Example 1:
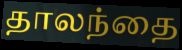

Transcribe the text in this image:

தாலந்தை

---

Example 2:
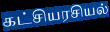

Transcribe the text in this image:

கட்சியரசியல்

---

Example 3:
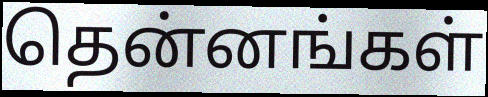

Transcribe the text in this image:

தென்னங்கள்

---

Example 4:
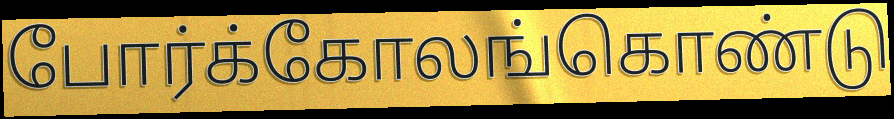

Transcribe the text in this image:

போர்க்கோலங்கொண்டு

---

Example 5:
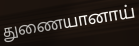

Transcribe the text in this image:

துணையானாய்